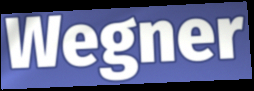
Wegner